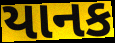
યાનક